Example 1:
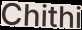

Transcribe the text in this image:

Chithi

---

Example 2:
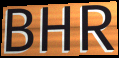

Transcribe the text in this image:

BHR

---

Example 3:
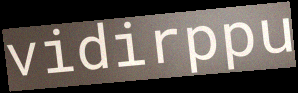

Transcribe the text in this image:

vidirppu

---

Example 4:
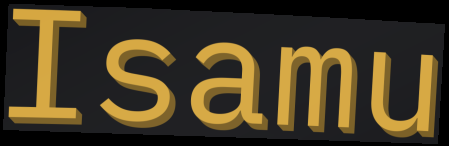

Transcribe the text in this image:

Isamu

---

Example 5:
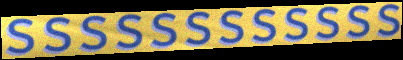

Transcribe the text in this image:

ssssssssssss